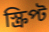
স্ক্ৰিপ্ট